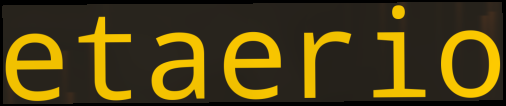
etaerio